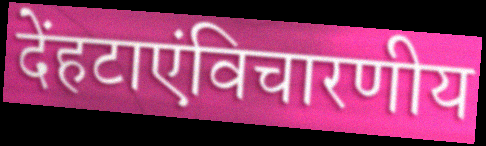
देंहटाएंविचारणीय